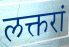
लक्तरां